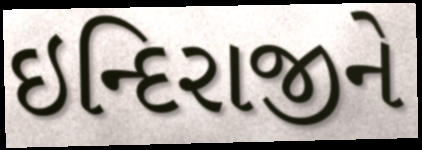
ઇન્દિરાજીને